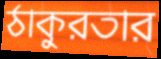
ঠাকুরতার